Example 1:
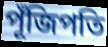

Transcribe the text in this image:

পূঁজিপতি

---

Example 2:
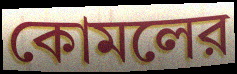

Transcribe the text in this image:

কোমলের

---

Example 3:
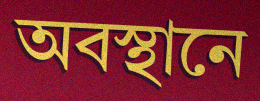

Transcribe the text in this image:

অবস্থানে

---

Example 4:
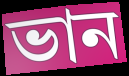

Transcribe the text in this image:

ভান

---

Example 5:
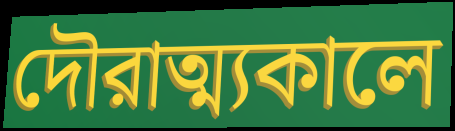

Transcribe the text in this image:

দৌরাত্ম্যকালে